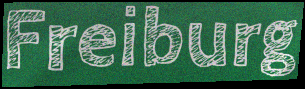
Freiburg